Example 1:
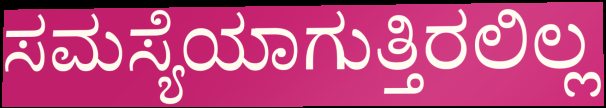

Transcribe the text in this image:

ಸಮಸ್ಯೆಯಾಗುತ್ತಿರಲಿಲ್ಲ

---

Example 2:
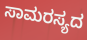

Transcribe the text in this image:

ಸಾಮರಸ್ಯದ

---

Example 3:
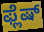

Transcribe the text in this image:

ಫ್ಲೆಷ್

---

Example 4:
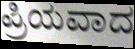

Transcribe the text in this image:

ಪ್ರಿಯವಾದ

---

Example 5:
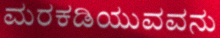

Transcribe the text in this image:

ಮರಕಡಿಯುವವನು